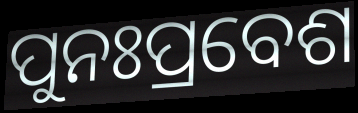
ପୁନଃପ୍ରବେଶ